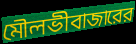
মৌলভীবাজারের